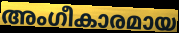
അംഗീകാരമായ